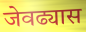
जेवढ्यास